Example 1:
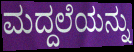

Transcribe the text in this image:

ಮದ್ದಲೆಯನ್ನು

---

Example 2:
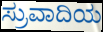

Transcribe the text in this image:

ಸ್ರುವಾದಿಯ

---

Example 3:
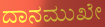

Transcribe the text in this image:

ದಾನಮುಖೇ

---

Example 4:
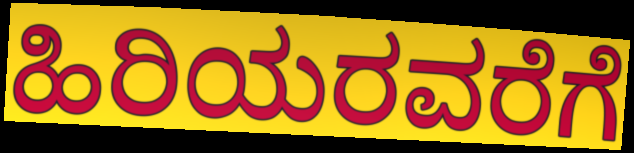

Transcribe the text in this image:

ಹಿರಿಯರವರೆಗೆ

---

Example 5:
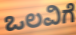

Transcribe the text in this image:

ಒಲವಿಗೆ